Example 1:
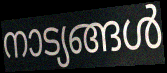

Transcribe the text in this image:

നാട്യങ്ങൾ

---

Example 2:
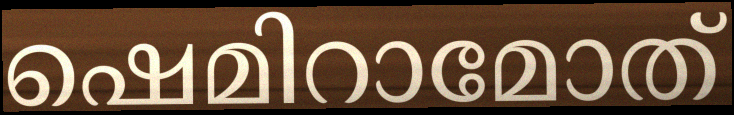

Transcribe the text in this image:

ഷെമിറാമോത്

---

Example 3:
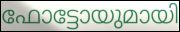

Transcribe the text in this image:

ഫോട്ടോയുമായി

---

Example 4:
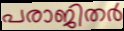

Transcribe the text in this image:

പരാജിതർ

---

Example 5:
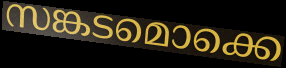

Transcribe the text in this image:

സങ്കടമൊക്കെ